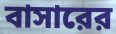
বাসারের